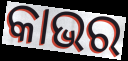
କାଭର